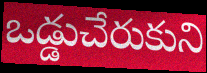
ఒడ్డుచేరుకుని